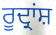
ਰੂਦ੍ਰਾਂਸ਼